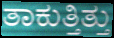
ತಾಕುತ್ತಿತ್ತು